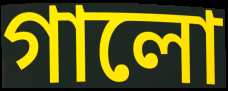
গালো